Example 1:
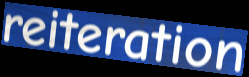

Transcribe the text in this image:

reiteration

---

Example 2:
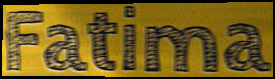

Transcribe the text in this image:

Fatima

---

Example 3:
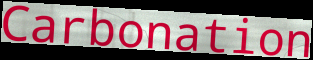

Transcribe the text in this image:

Carbonation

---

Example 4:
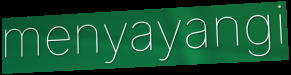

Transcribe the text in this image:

menyayangi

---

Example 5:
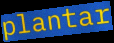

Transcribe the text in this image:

plantar